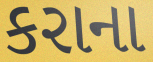
કરાના